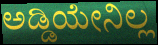
ಅಡ್ಡಿಯೇನಿಲ್ಲ